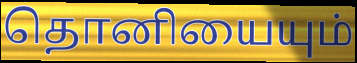
தொனியையும்